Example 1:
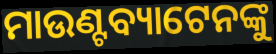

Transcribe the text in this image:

ମାଉଣ୍ଟବ୍ୟାଟେନଙ୍କୁ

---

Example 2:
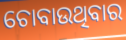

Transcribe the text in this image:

ଚୋବାଉଥିବାର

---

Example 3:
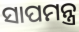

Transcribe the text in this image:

ସାପମନ୍ତ୍ର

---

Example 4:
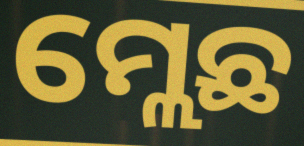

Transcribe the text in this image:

ମ୍ଲେଛ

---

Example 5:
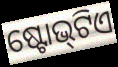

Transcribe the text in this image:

ଷ୍ଟୋଭ୍‌ଟିଏ